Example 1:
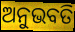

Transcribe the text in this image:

ଅନୁଭବତି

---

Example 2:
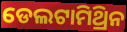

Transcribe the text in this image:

ଡେଲଟାମିଥ୍ରିନ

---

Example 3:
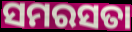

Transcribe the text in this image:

ସମରସତା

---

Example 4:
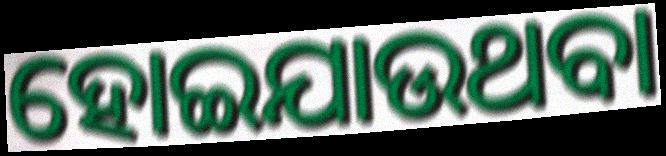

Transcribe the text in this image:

ହୋଇଯାଉଥବା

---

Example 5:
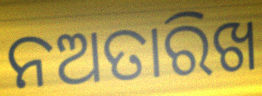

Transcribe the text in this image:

ନଅତାରିଖ